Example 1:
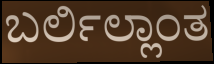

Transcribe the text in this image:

ಬರ್ಲಿಲ್ಲಾಂತ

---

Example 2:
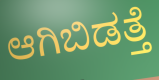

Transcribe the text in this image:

ಆಗಿಬಿಡತ್ತೆ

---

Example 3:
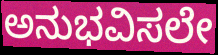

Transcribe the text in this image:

ಅನುಭವಿಸಲೇ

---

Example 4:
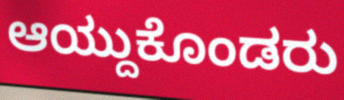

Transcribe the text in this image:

ಆಯ್ದುಕೊಂಡರು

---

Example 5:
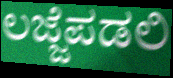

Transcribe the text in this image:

ಲಜ್ಜೆಪಡಲಿ